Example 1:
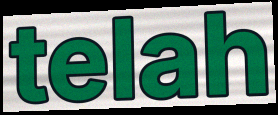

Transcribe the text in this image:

telah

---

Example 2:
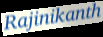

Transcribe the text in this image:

Rajinikanth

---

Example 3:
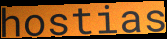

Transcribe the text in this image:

hostias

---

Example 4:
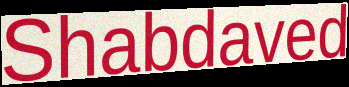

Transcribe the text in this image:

Shabdaved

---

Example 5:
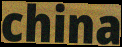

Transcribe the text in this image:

china